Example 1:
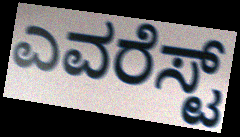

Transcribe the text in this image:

ಎವರೆಸ್ಟ್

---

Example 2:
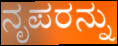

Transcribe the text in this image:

ನೃಪರನ್ನು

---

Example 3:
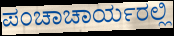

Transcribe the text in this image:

ಪಂಚಾಚಾರ್ಯರಲ್ಲಿ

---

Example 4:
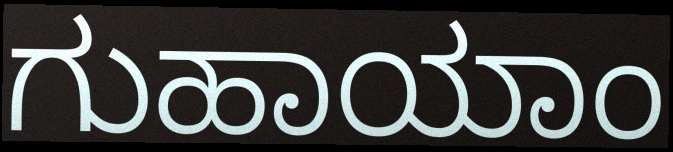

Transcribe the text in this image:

ಗುಹಾಯಾಂ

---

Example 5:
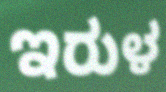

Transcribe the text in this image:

ಇರುಳ